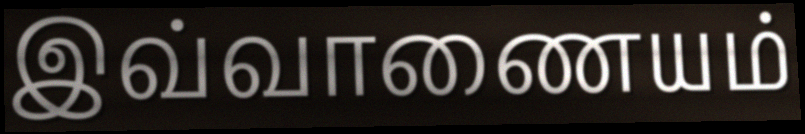
இவ்வாணையம்